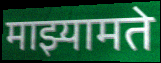
माझ्यामते